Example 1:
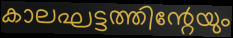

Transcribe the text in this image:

കാലഘട്ടത്തിന്റേയും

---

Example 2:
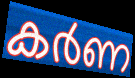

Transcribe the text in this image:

കർണ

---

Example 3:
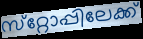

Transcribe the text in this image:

സ്‌റ്റോപ്പിലേക്ക്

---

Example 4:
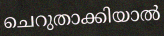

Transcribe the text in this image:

ചെറുതാക്കിയാൽ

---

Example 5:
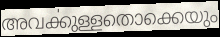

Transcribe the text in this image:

അവൎക്കുള്ളതൊക്കെയും